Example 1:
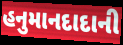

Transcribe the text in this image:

હનુમાનદાદાની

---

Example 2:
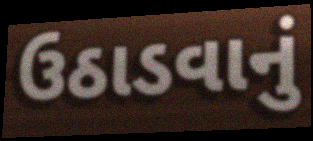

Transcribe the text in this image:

ઉઠાડવાનું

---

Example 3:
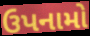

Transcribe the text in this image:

ઉપનામો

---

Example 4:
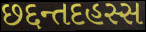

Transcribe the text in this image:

છદ્દન્તદહસ્સ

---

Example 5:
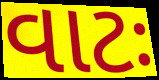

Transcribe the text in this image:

વાટઃ